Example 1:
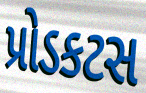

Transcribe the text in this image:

પ્રોડકટસ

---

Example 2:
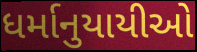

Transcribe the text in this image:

ધર્માનુયાયીઓ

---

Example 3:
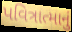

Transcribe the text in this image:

પવિત્રાત્માનું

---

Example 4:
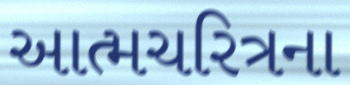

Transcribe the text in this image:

આત્મચરિત્રના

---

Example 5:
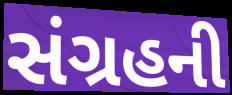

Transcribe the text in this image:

સંગ્રહની